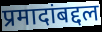
प्रमादांबद्दल